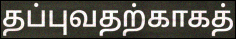
தப்புவதற்காகத்